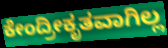
ಕೇಂದ್ರೀಕೃತವಾಗಿಲ್ಲ